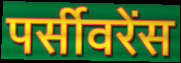
पर्सीवरेंस